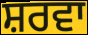
ਸ਼ਰਵਾ